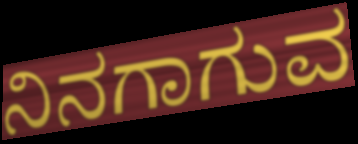
ನಿನಗಾಗುವ